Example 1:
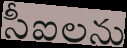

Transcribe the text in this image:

సీఐలను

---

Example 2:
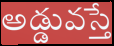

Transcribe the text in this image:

అడ్డువస్తే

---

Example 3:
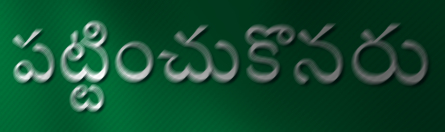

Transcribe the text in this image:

పట్టించుకొనరు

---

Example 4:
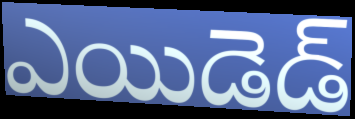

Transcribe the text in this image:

ఎయిడెడ్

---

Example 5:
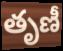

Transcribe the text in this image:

తృణీ